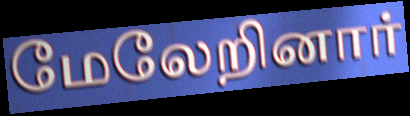
மேலேறினார்